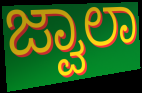
ಜ್ವಾಲಾ